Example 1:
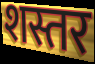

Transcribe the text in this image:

शस्तर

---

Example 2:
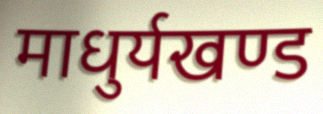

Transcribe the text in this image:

माधुर्यखण्ड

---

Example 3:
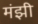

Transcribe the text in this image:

मंझी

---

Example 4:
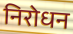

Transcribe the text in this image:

निरोधन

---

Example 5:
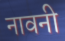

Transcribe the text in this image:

नावनी